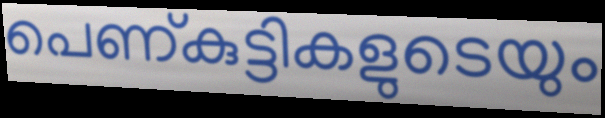
പെണ്കുട്ടികളുടെയും